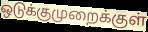
ஒடுக்குமுறைக்குள்